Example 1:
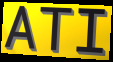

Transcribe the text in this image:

ATI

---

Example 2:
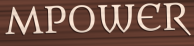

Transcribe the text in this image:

MPOWER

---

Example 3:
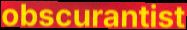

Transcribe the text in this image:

obscurantist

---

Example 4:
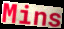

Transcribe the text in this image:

Mins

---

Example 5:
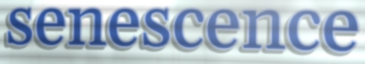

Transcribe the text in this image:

senescence